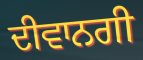
ਦੀਵਾਨਗੀ